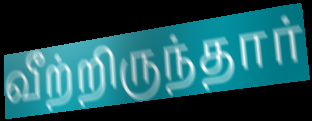
வீற்றிருந்தார்